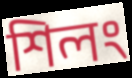
শিলং